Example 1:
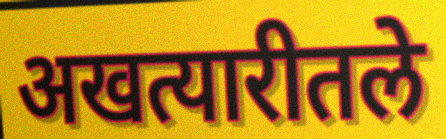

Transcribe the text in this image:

अखत्यारीतले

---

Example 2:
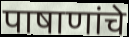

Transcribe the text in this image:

पाषाणांचे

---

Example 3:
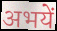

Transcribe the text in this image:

अभयें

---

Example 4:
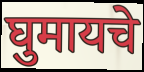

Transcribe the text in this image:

घुमायचे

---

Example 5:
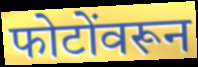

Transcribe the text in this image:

फोटोंवरून